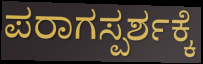
ಪರಾಗಸ್ಪರ್ಶಕ್ಕೆ